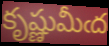
కృష్ణుమీఁద